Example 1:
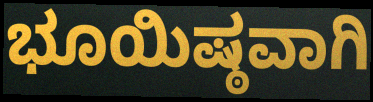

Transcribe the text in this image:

ಭೂಯಿಷ್ಠವಾಗಿ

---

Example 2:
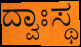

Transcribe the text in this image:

ದ್ವಾಃಸ್ಥ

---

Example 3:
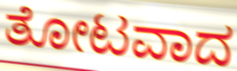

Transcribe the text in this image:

ತೋಟವಾದ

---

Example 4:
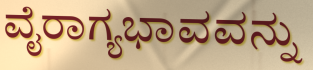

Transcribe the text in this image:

ವೈರಾಗ್ಯಭಾವವನ್ನು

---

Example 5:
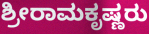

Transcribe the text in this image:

ಶ್ರೀರಾಮಕೃಷ್ಣರು